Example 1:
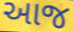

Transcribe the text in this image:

આજ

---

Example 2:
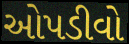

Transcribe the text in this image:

ઓપડીવો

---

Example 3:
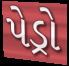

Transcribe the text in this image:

પેડ્રો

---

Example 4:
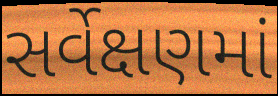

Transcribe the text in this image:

સર્વેક્ષણમાં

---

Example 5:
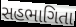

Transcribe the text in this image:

સહભાગિતા